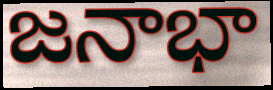
జనాభా